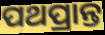
ପଥପ୍ରାନ୍ତ